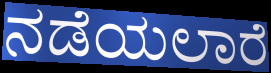
ನಡೆಯಲಾರೆ